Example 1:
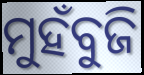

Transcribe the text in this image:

ମୁହଁବୁଜି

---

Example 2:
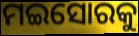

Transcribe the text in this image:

ମଇସୋରକୁ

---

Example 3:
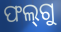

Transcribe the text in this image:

ଫଲ୍‌ଗୁ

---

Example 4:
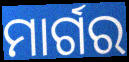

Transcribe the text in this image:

ମାର୍ଗର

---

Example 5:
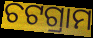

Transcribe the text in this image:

ଚଟଗ୍ରାମ